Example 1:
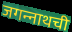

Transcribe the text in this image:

जगन्नाथची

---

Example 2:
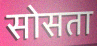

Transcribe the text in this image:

सोसता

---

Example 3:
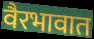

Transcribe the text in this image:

वैरभावात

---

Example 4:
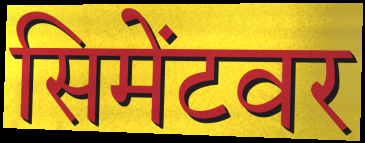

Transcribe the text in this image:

सिमेंटवर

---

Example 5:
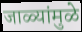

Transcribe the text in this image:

जाळ्यांमुळे